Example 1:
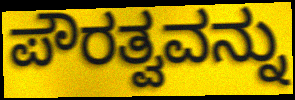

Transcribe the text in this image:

ಪೌರತ್ವವನ್ನು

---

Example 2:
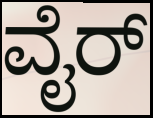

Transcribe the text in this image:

ವೈರ್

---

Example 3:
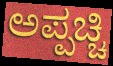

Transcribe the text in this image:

ಅಪ್ಪಚ್ಚಿ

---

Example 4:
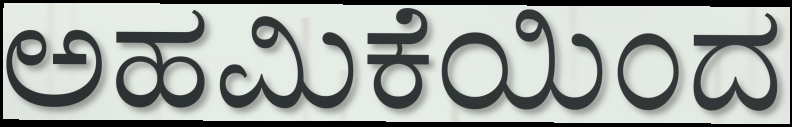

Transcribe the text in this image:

ಅಹಮಿಕೆಯಿಂದ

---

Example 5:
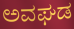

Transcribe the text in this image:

ಅವಘಡ